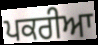
ਪਕਰੀਆ